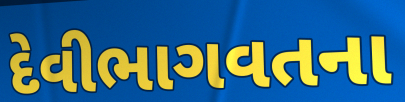
દેવીભાગવતના